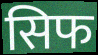
सिफ